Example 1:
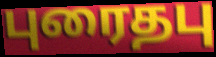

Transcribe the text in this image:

புரைதபு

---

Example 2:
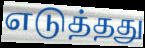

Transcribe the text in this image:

எடுத்தது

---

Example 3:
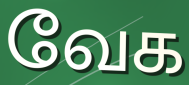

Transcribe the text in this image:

வேக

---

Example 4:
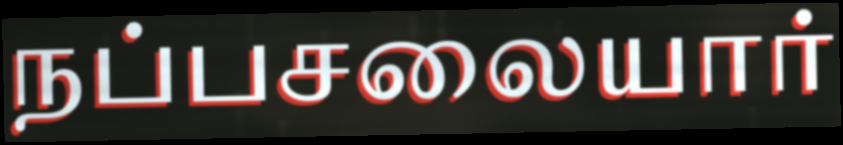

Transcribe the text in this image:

நப்பசலையார்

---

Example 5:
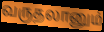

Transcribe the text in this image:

வருதலானும்